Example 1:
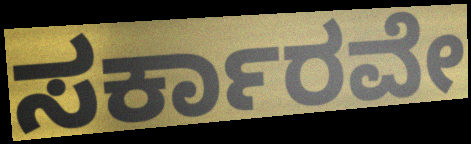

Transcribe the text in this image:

ಸರ್ಕಾರವೇ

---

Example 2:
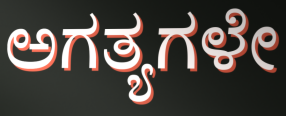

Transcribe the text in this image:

ಅಗತ್ಯಗಳೇ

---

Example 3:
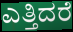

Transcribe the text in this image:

ಎತ್ತಿದರೆ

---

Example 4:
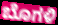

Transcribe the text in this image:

ಬೊಗಳಿ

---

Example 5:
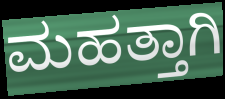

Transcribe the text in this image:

ಮಹತ್ತಾಗಿ